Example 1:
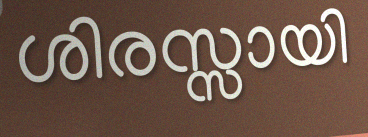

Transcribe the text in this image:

ശിരസ്സായി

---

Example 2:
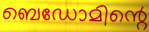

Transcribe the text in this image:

ബെഡോമിന്റെ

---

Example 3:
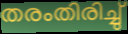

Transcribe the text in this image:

തരംതിരിച്ചു്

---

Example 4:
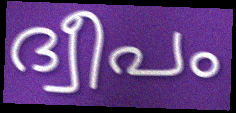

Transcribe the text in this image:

ദ്വീപം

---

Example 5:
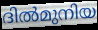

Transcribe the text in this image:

ദിൽമുനിയ